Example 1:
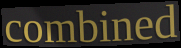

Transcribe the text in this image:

combined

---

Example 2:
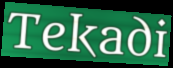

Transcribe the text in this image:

Tekadi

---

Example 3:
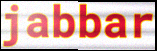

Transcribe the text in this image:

jabbar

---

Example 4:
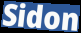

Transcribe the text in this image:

Sidon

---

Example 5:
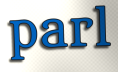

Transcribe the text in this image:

parl